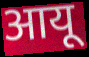
आयू